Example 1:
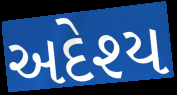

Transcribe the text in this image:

અદેશ્ય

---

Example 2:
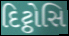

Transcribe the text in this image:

દિટ્ઠોસિ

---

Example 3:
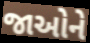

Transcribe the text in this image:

જાઓને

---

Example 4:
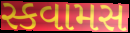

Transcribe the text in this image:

સ્કવામસ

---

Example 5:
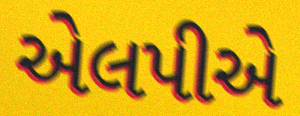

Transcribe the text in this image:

એલપીએ